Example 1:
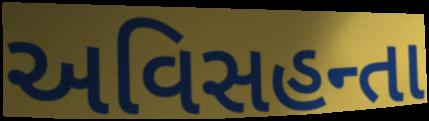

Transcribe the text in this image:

અવિસહન્તા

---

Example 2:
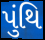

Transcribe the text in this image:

પુંથિ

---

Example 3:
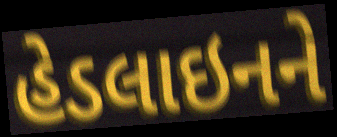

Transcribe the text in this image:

હેડલાઇનને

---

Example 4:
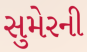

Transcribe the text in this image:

સુમેરની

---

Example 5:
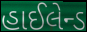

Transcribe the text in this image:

હાઈલેન્ડ